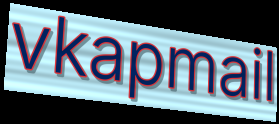
vkapmail